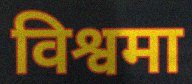
विश्वमा